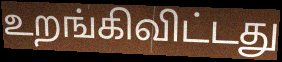
உறங்கிவிட்டது